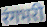
रंगभरी